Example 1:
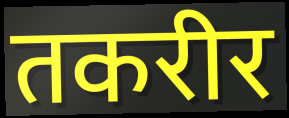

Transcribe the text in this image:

तकरीर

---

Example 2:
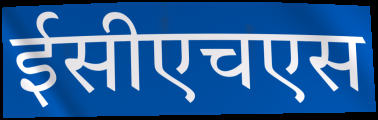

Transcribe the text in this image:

ईसीएचएस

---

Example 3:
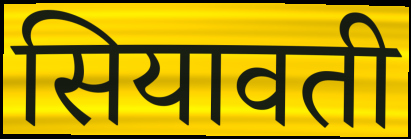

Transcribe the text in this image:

सियावती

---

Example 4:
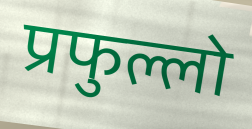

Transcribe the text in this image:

प्रफुल्लो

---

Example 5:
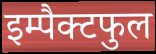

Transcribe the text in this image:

इम्पैक्टफुल